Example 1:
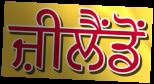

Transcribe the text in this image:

ਜ਼ੀਲੈਂਡੋਂ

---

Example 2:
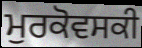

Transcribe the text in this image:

ਮੁਰਕੋਵਸਕੀ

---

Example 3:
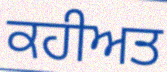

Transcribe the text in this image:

ਕਹੀਅਤ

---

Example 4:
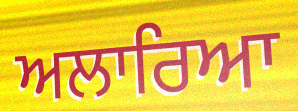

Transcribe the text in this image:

ਅਲਾਰਿਆ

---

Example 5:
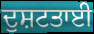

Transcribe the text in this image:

ਦੁਸ਼ਟਤਾਈ